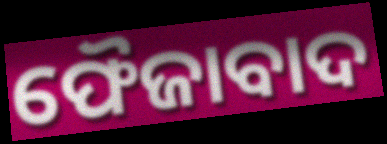
ଫୈଜାବାଦ